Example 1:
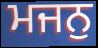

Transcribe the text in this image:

ਮਜਨੁ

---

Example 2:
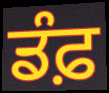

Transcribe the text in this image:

ਡੰਫ਼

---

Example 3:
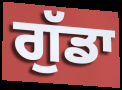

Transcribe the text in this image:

ਗੁੱਡਾ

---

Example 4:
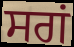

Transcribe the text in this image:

ਸਗਂ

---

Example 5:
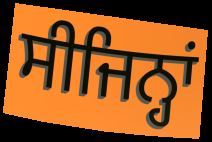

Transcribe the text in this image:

ਸੀਜਿਨ੍ਹਾਂ